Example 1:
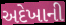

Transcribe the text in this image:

અદેખાની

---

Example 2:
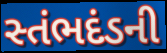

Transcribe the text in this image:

સ્તંભદંડની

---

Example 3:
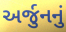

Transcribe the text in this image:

અર્જુનનું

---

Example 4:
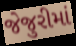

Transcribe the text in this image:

જેજુરીમાં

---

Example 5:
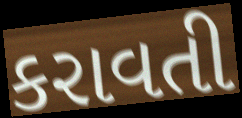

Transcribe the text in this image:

કરાવતી